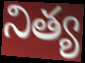
నిత్య